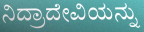
ನಿದ್ರಾದೇವಿಯನ್ನು